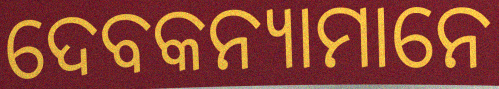
ଦେବକନ୍ୟାମାନେ